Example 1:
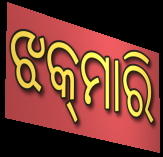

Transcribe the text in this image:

ଝକ୍‌ମାରି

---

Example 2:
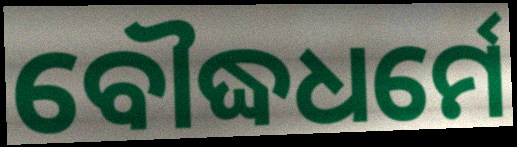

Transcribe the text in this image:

ବୌଦ୍ଧଧର୍ମେ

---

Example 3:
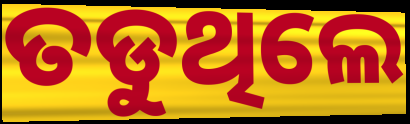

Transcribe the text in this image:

ତଡୁଥିଲେ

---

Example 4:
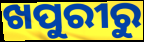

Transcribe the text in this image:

ଖପୁରୀରୁ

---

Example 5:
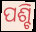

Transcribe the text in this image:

ପଶ୍ଚି